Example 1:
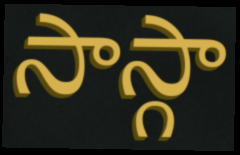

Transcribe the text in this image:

సాస్గా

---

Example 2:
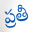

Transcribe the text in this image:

ప్రతీ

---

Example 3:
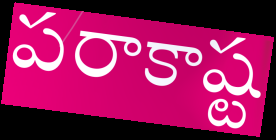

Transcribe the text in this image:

పరాకాష్ట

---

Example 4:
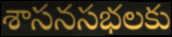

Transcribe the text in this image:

శాసనసభలకు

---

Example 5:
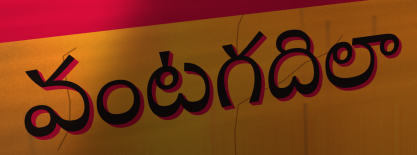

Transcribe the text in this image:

వంటగదిలా